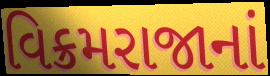
વિક્રમરાજાનાં